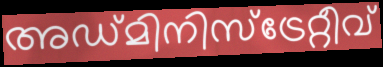
അഡ്മിനിസ്ട്രേറ്റീവ്